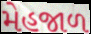
મેહજાળ